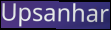
Upsanhar